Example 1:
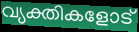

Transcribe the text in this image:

വ്യക്തികളോട്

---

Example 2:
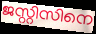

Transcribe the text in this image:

ജസ്റ്റിസിനെ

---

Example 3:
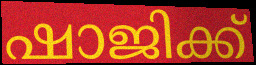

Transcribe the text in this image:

ഷാജിക്ക്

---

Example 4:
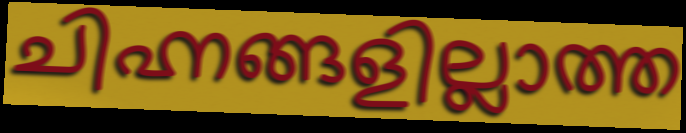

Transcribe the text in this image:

ചിഹ്നങ്ങളില്ലാത്ത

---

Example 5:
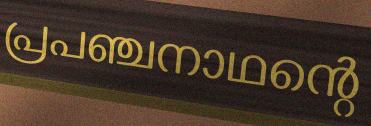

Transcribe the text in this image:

പ്രപഞ്ചനാഥന്റെ